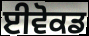
ਈਵੋਕਡ